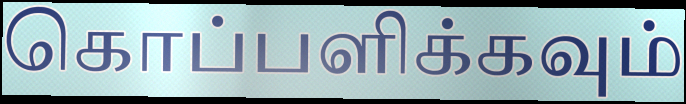
கொப்பளிக்கவும்